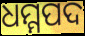
ଧମ୍ମପଦ